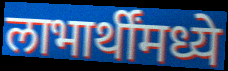
लाभार्थींमध्ये